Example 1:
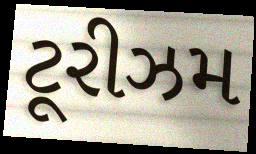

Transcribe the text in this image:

ટૂરીઝમ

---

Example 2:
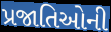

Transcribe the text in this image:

પ્રજાતિઓની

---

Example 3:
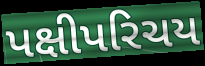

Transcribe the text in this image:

પક્ષીપરિચય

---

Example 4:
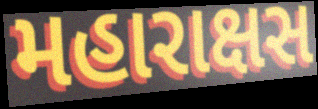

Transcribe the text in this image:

મહારાક્ષસ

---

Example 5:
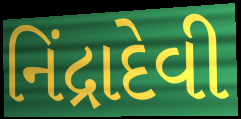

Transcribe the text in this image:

નિંદ્રાદેવી